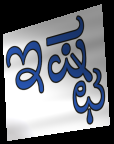
ಇಷ್ಟ